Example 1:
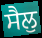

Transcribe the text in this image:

ਸੈਲੁ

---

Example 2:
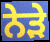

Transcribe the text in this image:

ਨੇਡ਼ੇ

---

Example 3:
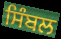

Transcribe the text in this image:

ਸਿੰਬਲ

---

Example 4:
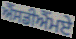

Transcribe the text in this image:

ਐੱਸਡੀਐੱਮਏ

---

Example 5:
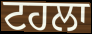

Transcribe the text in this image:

ਟਹਲਾ